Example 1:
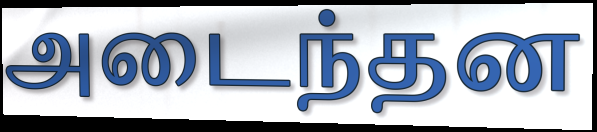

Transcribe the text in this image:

அடைந்தன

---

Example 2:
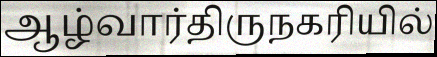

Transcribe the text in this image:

ஆழ்வார்திருநகரியில்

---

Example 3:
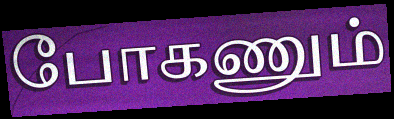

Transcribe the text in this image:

போகணும்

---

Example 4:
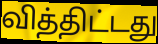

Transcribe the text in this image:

வித்திட்டது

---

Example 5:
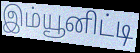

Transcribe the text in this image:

இம்யூனிட்டி